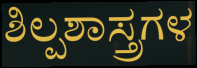
ಶಿಲ್ಪಶಾಸ್ತ್ರಗಳ